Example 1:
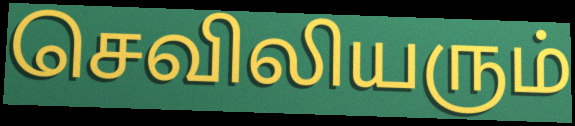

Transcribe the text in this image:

செவிலியரும்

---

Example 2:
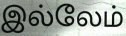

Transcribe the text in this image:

இல்லேம்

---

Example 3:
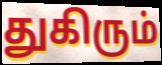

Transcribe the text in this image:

துகிரும்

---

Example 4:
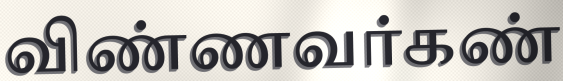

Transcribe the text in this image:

விண்ணவர்கண்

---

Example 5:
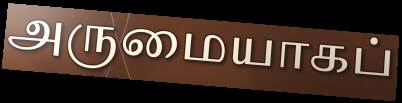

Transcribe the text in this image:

அருமையாகப்